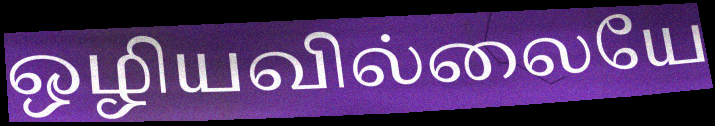
ஒழியவில்லையே